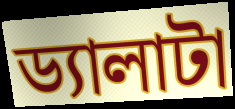
ড্যালাটা